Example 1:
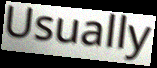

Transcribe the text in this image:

Usually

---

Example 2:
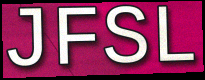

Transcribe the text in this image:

JFSL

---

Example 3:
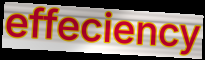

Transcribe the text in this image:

effeciency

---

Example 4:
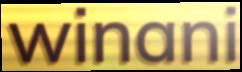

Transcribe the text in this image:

winani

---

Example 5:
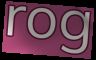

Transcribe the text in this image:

rog